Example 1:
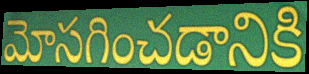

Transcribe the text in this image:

మోసగించడానికి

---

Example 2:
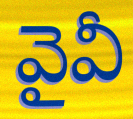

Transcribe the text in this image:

వైవీ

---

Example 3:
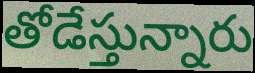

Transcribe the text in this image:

తోడేస్తున్నారు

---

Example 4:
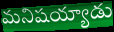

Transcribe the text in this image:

మనిషయ్యాడు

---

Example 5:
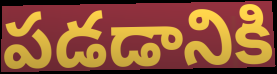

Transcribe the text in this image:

పడడానికి